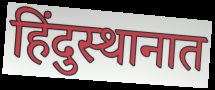
हिंदुस्थानात